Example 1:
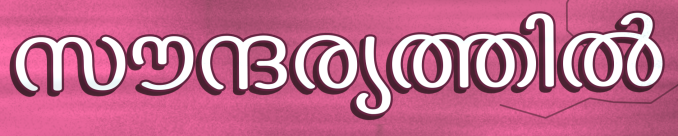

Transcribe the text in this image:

സൗന്ദര്യത്തിൽ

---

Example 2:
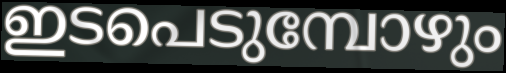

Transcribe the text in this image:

ഇടപെടുമ്പോഴും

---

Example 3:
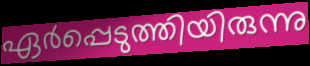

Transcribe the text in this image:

ഏർപ്പെടുത്തിയിരുന്നു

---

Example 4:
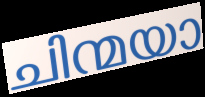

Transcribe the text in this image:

ചിന്മയാ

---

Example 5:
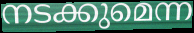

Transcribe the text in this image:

നടക്കുമെന്ന